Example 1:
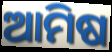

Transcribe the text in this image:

ଆମିଷ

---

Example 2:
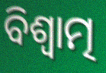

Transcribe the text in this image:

ବିଶ୍ୱାତ୍ମ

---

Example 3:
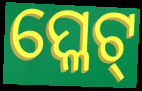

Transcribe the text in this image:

ପ୍ଳେଟ୍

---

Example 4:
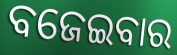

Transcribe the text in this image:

ବଜେଇବାର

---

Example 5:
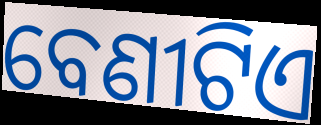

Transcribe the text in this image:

ବେଣୀଟିଏ